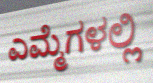
ಎಮ್ಮೆಗಳಲ್ಲಿ